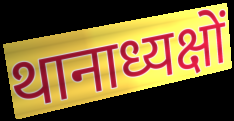
थानाध्यक्षों